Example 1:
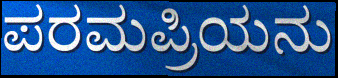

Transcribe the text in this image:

ಪರಮಪ್ರಿಯನು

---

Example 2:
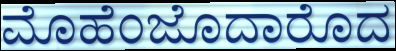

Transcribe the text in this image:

ಮೊಹೆಂಜೊದಾರೊದ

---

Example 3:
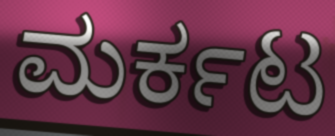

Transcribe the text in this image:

ಮರ್ಕಟ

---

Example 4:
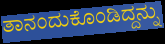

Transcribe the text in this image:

ತಾನಂದುಕೊಂಡಿದ್ದನ್ನು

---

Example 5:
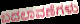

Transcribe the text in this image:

ಬದಲಾವಣೆಗಳು